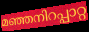
മഞ്ഞനിറപ്പാറ്റ